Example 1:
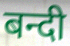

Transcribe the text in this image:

बन्दी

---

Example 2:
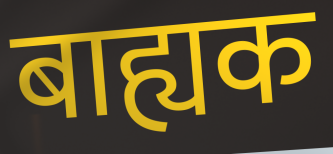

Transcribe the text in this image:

बाह्यक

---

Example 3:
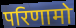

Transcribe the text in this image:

परिणामो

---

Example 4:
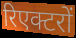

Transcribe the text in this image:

रिएक्टरों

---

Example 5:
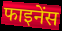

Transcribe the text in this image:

फाइनेंस